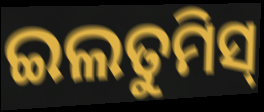
ଇଲତୁମିସ୍